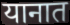
यानात